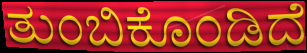
ತುಂಬಿಕೊಂಡಿದೆ